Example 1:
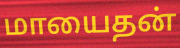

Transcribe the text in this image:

மாயைதன்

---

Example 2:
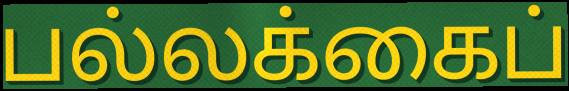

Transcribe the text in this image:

பல்லக்கைப்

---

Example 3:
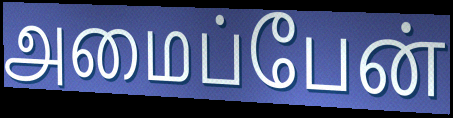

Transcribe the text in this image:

அமைப்பேன்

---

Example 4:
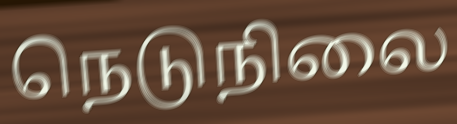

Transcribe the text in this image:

நெடுநிலை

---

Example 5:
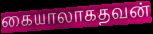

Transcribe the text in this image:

கையாலாகதவன்